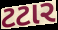
ટટાર